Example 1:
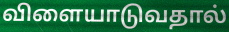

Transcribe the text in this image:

விளையாடுவதால்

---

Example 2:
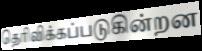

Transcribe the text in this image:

தெரிவிக்கப்படுகின்றன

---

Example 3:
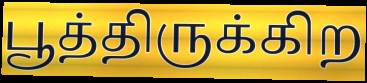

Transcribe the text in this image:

பூத்திருக்கிற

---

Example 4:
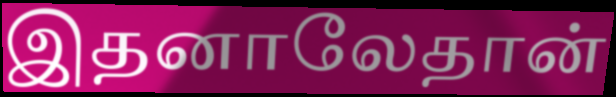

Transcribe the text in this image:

இதனாலேதான்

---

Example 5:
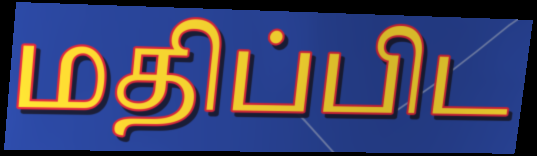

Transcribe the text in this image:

மதிப்பிட